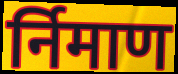
र्निमाण